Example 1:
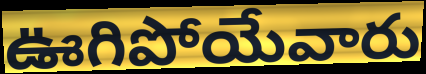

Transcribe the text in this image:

ఊగిపోయేవారు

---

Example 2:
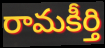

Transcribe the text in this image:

రామకీర్తి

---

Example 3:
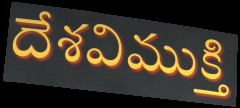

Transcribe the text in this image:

దేశవిముక్తి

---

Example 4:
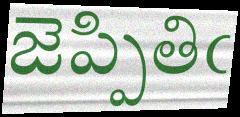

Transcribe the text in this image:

జెప్పితిఁ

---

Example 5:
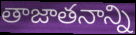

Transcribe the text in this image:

తాజాతనాన్ని